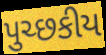
પુચ્છકીય